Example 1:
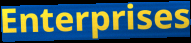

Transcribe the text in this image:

Enterprises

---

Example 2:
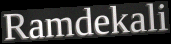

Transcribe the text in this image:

Ramdekali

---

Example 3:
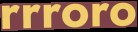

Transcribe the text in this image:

rrroro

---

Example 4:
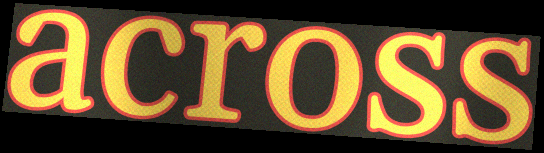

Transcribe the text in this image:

across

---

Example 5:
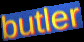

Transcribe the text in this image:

butler